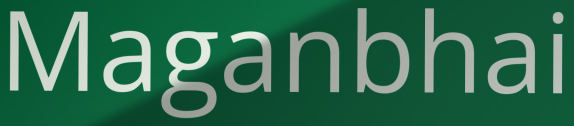
Maganbhai